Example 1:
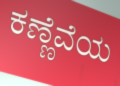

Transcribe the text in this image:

ಕಣ್ಣೆವೆಯ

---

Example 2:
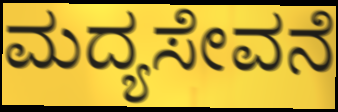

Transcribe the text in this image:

ಮದ್ಯಸೇವನೆ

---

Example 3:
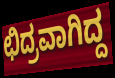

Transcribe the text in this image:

ಛಿದ್ರವಾಗಿದ್ದ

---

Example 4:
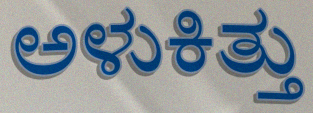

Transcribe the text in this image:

ಅಳುಕಿತ್ತು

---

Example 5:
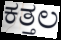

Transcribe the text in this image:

ಕತ್ತಲ